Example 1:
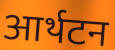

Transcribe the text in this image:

आर्थटन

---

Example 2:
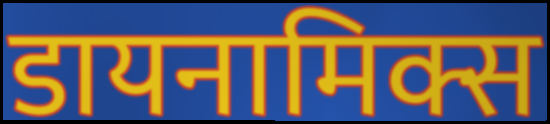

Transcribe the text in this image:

डायनामिक्स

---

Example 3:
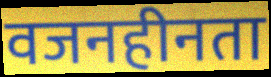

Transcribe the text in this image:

वजनहीनता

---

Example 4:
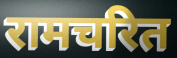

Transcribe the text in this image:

रामचरित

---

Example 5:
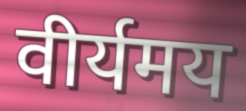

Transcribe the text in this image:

वीर्यमय